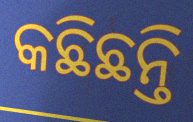
କଛିଛନ୍ତି